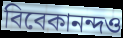
বিবেকানন্দও